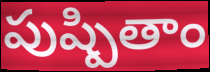
పుష్పితాం